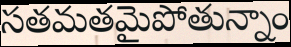
సతమతమైపోతున్నాం